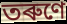
তৰুণে